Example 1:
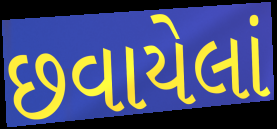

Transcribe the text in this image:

છવાયેલાં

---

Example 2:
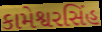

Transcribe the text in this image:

કામેશ્વરસિંહ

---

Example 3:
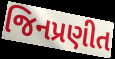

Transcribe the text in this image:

જિનપ્રણીત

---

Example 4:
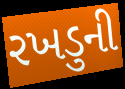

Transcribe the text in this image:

રખડુની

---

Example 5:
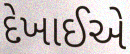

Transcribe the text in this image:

દેખાઈએ